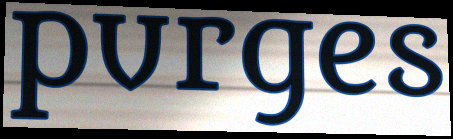
purges